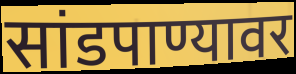
सांडपाण्यावर